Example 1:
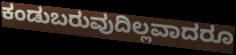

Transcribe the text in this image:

ಕಂಡುಬರುವುದಿಲ್ಲವಾದರೂ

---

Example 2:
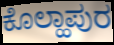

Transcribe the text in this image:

ಕೊಲ್ಹಾಪುರ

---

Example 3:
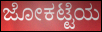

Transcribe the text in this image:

ಜೋಕಟ್ಟೆಯ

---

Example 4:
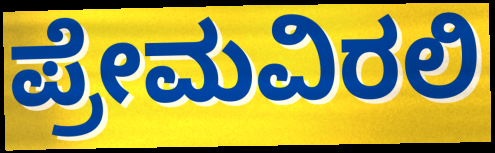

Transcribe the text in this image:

ಪ್ರೇಮವಿರಲಿ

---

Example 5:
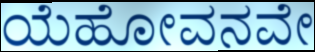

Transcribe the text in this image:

ಯೆಹೋವನವೇ